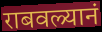
राबवल्यानं